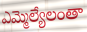
ఎమ్మెల్యేలంతా